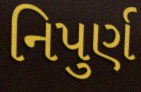
નિપુર્ણ